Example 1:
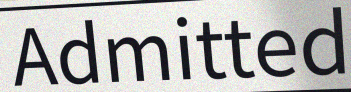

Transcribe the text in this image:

Admitted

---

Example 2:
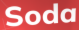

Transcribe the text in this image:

Soda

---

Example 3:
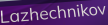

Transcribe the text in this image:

Lazhechnikov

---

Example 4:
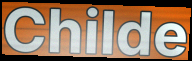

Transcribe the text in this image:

Childe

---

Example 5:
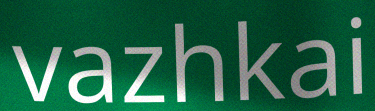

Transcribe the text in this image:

vazhkai